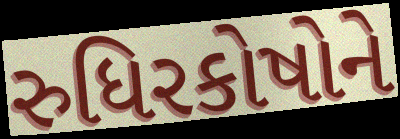
રુધિરકોષોને